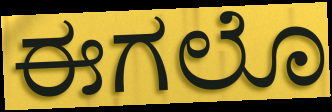
ಈಗಲೊ